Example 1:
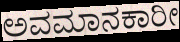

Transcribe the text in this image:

ಅವಮಾನಕಾರೀ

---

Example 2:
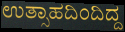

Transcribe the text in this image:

ಉತ್ಸಾಹದಿಂದಿದ್ದ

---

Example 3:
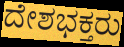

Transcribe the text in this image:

ದೇಶಭಕ್ತರು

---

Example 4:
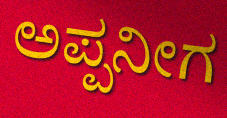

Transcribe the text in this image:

ಅಪ್ಪನೀಗ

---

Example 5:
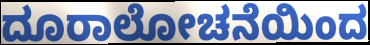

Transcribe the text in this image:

ದೂರಾಲೋಚನೆಯಿಂದ